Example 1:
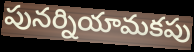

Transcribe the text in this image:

పునర్నియామకపు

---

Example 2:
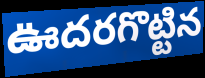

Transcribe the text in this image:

ఊదరగొట్టిన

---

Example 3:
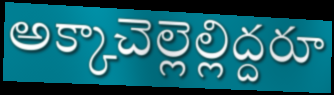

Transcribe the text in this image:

అక్కాచెల్లెల్లిద్దరూ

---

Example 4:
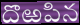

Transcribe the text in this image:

దొఱపిన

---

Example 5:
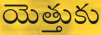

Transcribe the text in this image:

యెత్తుకు